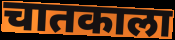
चातकाला